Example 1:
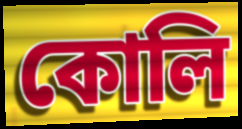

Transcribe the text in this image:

কোলি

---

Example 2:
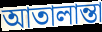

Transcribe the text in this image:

আতালান্তা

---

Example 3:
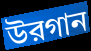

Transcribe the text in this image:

উরগান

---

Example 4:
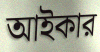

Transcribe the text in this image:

আইকার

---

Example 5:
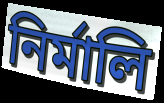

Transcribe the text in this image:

নির্মালি